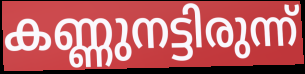
കണ്ണുനട്ടിരുന്ന്